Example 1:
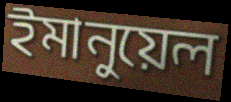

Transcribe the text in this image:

ইমানুয়েল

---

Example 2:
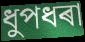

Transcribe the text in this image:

ধুপধৰা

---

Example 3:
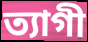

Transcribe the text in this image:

ত্যাগী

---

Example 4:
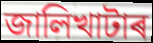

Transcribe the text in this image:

জালিখাটাৰ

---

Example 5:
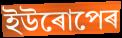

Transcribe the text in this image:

ইউৰোপেৰ